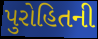
પુરોહિતની